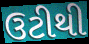
ઉટીથી